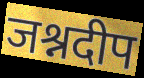
जश्नदीप